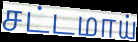
சட்டமாய்